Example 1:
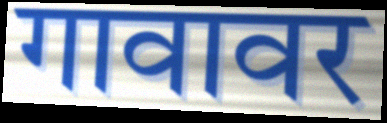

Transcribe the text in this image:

गावावर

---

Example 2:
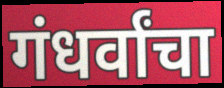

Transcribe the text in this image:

गंधर्वांचा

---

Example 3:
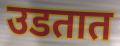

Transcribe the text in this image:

उडतात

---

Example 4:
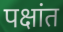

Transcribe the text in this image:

पक्षांत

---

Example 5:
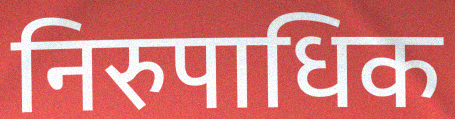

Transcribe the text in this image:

निरुपाधिक